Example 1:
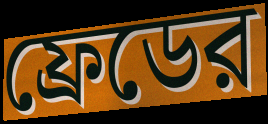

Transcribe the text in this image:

ফ্রেডের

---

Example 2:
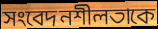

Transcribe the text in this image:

সংবেদনশীলতাকে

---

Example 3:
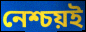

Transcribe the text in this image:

নেশ্চয়ই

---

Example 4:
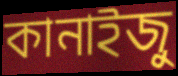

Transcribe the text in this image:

কানাইজু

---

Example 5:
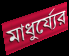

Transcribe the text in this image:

মাধুর্য্যের